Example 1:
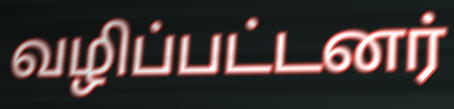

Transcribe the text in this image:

வழிப்பட்டனர்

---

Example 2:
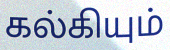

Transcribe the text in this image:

கல்கியும்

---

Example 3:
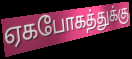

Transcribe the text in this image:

ஏகபோகத்துக்கு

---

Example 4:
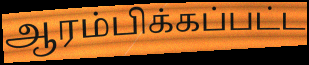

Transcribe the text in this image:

ஆரம்பிக்கப்பட்ட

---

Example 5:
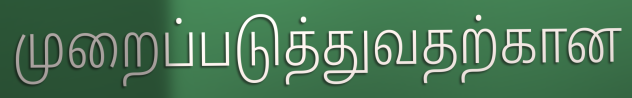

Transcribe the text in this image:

முறைப்படுத்துவதற்கான